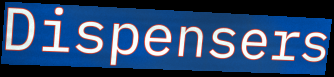
Dispensers